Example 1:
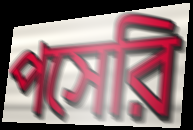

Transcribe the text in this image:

পসেরি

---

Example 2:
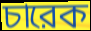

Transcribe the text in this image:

চারেক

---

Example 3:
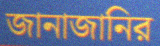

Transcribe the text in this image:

জানাজানির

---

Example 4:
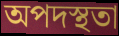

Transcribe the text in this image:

অপদস্থতা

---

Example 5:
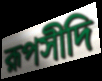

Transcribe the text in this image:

রূপসীদি